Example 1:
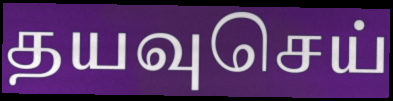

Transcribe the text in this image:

தயவுசெய்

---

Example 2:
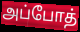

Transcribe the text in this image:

அப்போத்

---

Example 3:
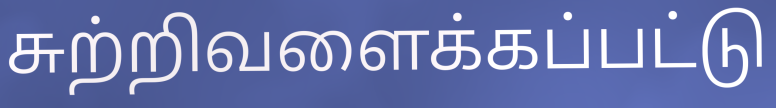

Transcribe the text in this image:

சுற்றிவளைக்கப்பட்டு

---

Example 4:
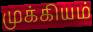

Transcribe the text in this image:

முக்கியம்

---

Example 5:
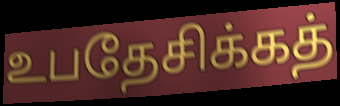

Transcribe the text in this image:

உபதேசிக்கத்